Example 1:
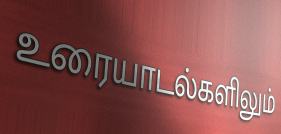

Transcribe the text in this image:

உரையாடல்களிலும்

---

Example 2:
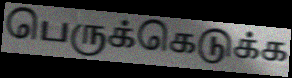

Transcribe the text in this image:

பெருக்கெடுக்க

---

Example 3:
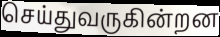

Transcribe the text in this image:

செய்துவருகின்றன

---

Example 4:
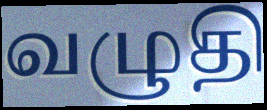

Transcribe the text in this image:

வழுதி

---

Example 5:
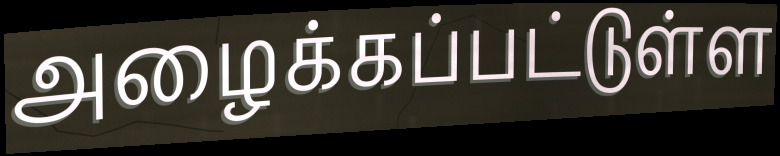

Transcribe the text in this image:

அழைக்கப்பட்டுள்ள